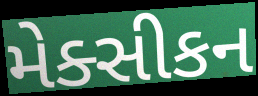
મેક્સીકન